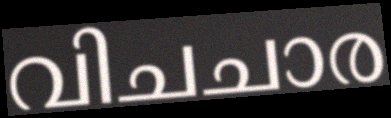
വിചചാര